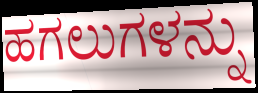
ಹಗಲುಗಳನ್ನು